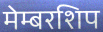
मेम्बरशिप